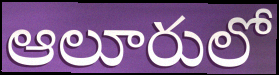
ఆలూరులో